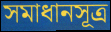
সমাধানসূত্ৰ